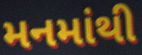
મનમાંથી